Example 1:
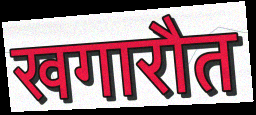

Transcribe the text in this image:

खगारौत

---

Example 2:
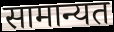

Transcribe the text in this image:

सामान्यत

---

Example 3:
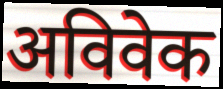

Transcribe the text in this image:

अविवेक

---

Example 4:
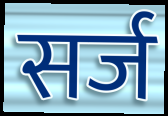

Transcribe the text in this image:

सर्ज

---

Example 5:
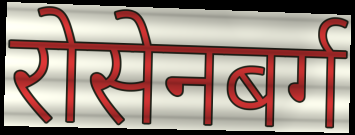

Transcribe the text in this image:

रोसेनबर्ग